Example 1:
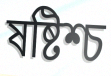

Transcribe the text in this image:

ষষ্টিশ্চ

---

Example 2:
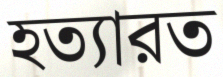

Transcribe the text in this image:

হত্যারত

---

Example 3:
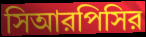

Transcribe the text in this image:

সিআরপিসির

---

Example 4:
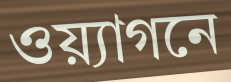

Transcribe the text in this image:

ওয়্যাগনে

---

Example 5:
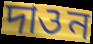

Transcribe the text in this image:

দাওন